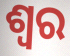
ଶ୍ୱର